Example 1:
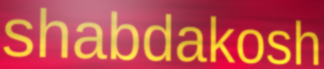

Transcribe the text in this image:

shabdakosh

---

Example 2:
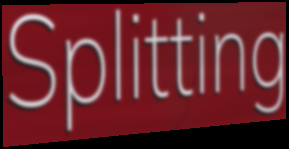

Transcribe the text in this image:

Splitting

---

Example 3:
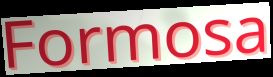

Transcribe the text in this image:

Formosa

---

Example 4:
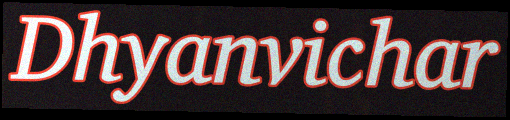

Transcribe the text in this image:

Dhyanvichar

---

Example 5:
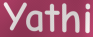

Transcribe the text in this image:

Yathi